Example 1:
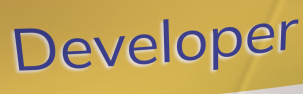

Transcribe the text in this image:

Developer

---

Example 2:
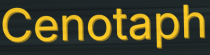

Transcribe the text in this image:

Cenotaph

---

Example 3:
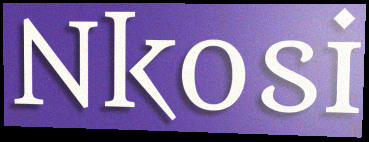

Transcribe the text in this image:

Nkosi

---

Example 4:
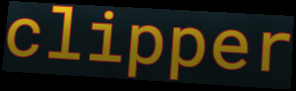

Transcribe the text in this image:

clipper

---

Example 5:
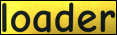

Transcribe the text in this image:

loader